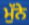
ਮੁੱਨੇ